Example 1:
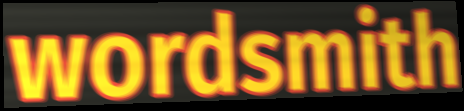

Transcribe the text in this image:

wordsmith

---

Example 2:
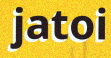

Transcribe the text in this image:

jatoi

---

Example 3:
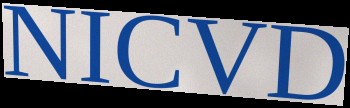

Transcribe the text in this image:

NICVD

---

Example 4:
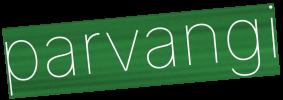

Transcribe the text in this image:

parvangi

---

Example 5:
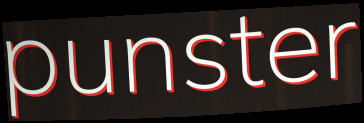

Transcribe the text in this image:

punster